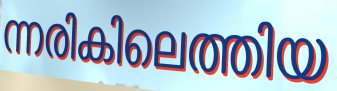
ന്നരികിലെത്തിയ